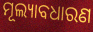
ମୂଲ୍ୟାବଧାରଣ